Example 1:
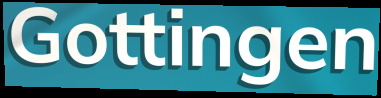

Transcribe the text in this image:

Gottingen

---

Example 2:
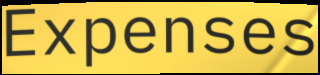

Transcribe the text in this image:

Expenses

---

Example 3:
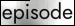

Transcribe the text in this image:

episode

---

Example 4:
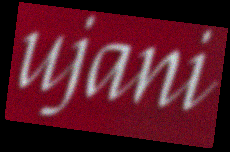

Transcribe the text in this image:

ujani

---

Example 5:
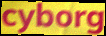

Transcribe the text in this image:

cyborg